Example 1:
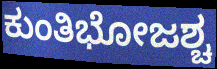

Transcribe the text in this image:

ಕುಂತಿಭೋಜಶ್ಚ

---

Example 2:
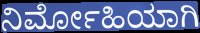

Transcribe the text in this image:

ನಿರ್ಮೋಹಿಯಾಗಿ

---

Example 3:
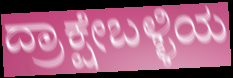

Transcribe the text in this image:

ದ್ರಾಕ್ಷೇಬಳ್ಳಿಯ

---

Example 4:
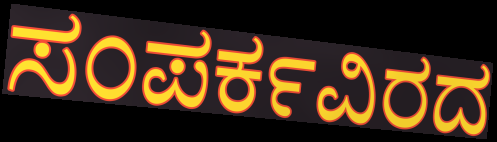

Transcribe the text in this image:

ಸಂಪರ್ಕವಿರದ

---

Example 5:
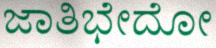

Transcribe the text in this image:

ಜಾತಿಭೇದೋ